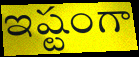
ఇష్టంగా